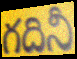
గదినీ